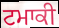
ਟਮਾਕੀ